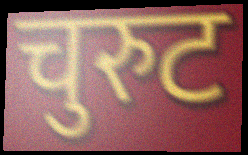
चुरुट